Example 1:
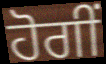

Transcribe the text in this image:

ਹੋਗੀਂ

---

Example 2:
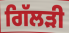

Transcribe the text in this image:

ਗਿੱਲੜੀ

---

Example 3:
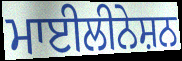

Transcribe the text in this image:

ਮਾਈਲੀਨੇਸ਼ਨ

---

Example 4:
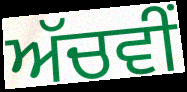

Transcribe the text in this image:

ਅੱਚਵੀਂ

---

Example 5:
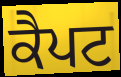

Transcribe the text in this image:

ਕੈਪਟ